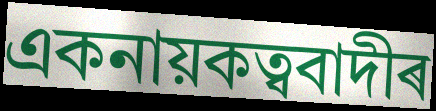
একনায়কত্ববাদীৰ